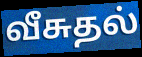
வீசுதல்